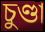
চুণ্ডা